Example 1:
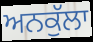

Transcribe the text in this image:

ਅਨਕੁੱਲਾ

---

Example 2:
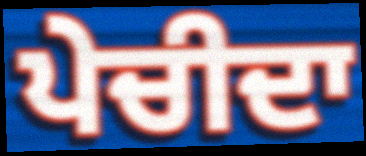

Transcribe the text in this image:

ਪੇਚੀਦਾ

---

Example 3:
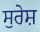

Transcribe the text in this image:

ਸੁਰੇਸ਼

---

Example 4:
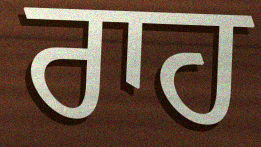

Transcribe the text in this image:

ਰਾਹ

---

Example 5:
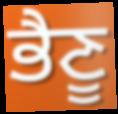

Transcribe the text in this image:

ਭੈਣੂ